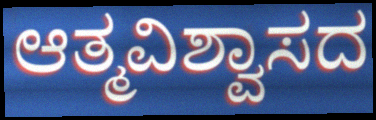
ಆತ್ಮವಿಶ್ವಾಸದ